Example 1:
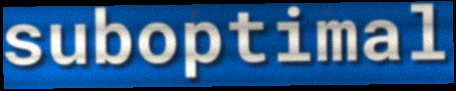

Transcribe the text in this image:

suboptimal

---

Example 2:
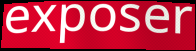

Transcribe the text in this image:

exposer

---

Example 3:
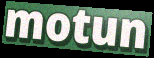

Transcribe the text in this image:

motun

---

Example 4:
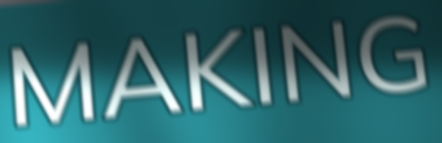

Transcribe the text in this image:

MAKING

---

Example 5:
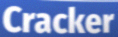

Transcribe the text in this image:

Cracker